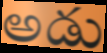
అడు